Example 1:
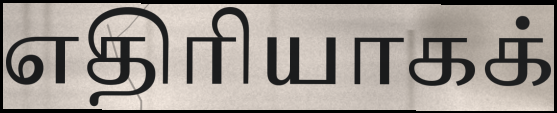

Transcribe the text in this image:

எதிரியாகக்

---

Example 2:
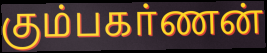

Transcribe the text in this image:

கும்பகர்ணன்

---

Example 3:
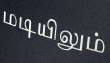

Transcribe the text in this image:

மடியிலும்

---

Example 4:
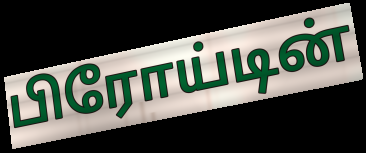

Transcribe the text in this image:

பிரோய்டின்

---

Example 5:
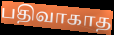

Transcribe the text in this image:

பதிவாகாத